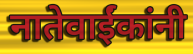
नातेवाईंकांनी